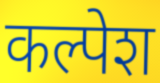
कल्पेश